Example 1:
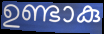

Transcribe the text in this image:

ഉണ്ടാകു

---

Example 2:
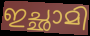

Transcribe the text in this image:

ഇച്ഛാമി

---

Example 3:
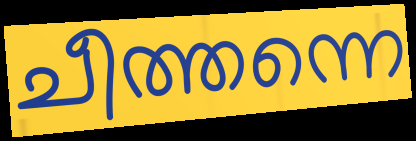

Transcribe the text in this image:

ചീത്തന്നെ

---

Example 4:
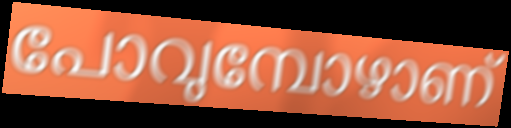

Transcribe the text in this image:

പോവുമ്പോഴാണ്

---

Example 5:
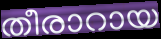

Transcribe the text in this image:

തീരാറായ